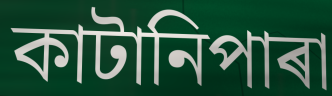
কাটানিপাৰা